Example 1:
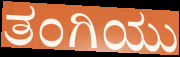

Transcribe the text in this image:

ತಂಗಿಯು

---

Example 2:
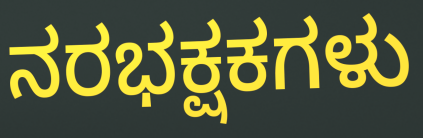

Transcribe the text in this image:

ನರಭಕ್ಷಕಗಳು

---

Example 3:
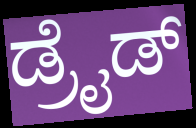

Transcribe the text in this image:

ಡ್ರೈಡ್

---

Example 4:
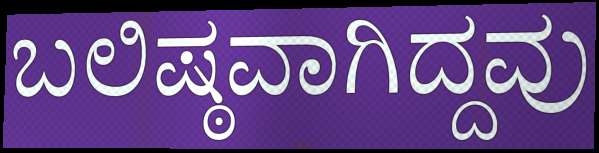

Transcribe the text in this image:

ಬಲಿಷ್ಠವಾಗಿದ್ದವು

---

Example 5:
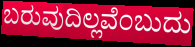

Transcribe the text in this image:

ಬರುವುದಿಲ್ಲವೆಂಬುದು